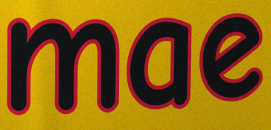
mae